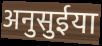
अनुसुईया